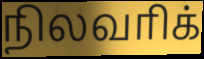
நிலவரிக்